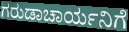
ಗರುಡಾಚಾರ್ಯನಿಗೆ